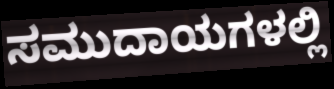
ಸಮುದಾಯಗಳಲ್ಲಿ